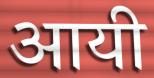
आयी